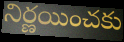
నిర్ణయించకు